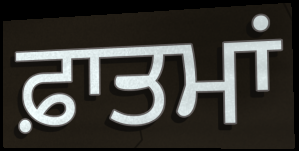
ਫ਼ਾਤਮਾਂ